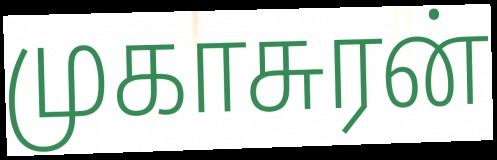
முகாசுரன்